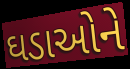
ઘડાઓને